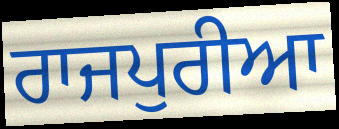
ਰਾਜਪੁਰੀਆ